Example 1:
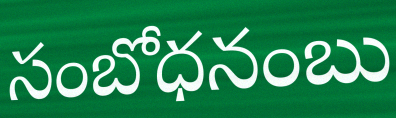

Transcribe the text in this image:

సంబోధనంబు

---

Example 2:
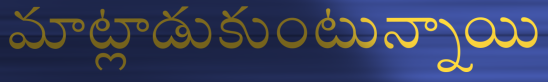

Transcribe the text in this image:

మాట్లాడుకుంటున్నాయి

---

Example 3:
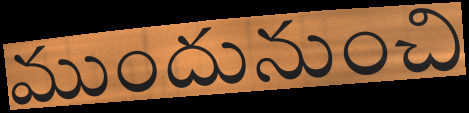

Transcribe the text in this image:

ముందునుంచి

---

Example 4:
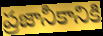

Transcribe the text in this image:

ప్రజానీకానికి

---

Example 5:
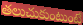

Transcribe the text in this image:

తలుచుకుంటుంటే